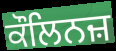
ਕੌਲਿਨਜ਼